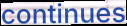
continues